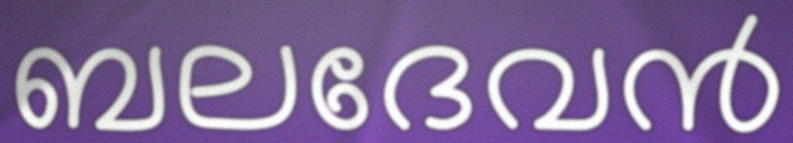
ബലദേവൻ